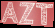
AZT